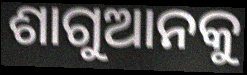
ଶାଗୁଆନକୁ